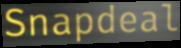
Snapdeal